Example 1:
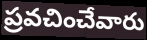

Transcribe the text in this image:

ప్రవచించేవారు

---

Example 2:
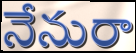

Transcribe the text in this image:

నేనురా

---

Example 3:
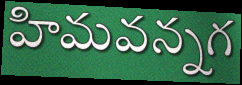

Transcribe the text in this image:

హిమవన్నగ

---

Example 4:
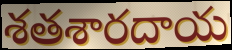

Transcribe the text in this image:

శతశారదాయ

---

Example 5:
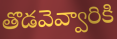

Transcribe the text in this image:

తొడవెవ్వారికి